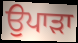
ਉਪਾੜਾ